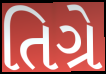
તિગ્રે